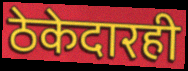
ठेकेदारही